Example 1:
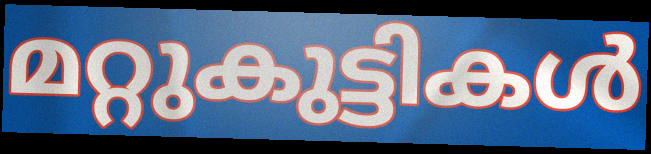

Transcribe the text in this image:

മറ്റുകുട്ടികൾ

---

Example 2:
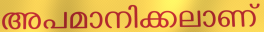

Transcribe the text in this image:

അപമാനിക്കലാണ്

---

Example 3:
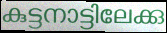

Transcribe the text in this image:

കുട്ടനാട്ടിലേക്കു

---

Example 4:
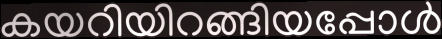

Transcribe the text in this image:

കയറിയിറങ്ങിയപ്പോൾ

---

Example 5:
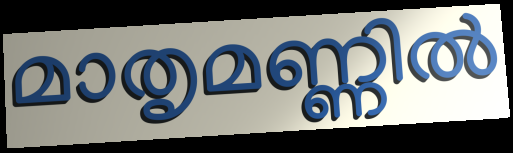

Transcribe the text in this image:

മാതൃമണ്ണിൽ